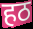
हठ